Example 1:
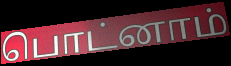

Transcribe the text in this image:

பொட்னாம்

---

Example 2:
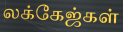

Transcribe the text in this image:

லக்கேஜ்கள்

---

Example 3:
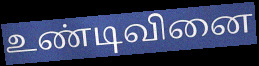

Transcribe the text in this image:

உண்டிவினை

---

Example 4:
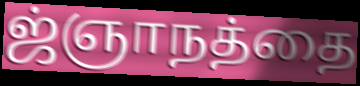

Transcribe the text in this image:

ஜ்ஞாநத்தை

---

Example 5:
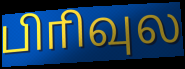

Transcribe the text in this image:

பிரிவுல